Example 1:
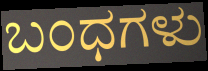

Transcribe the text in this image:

ಬಂಧಗಳು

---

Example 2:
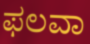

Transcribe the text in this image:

ಫಲವಾ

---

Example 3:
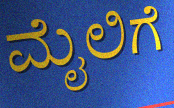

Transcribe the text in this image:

ಮೈಲಿಗೆ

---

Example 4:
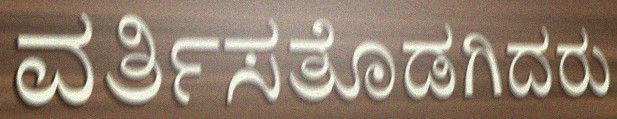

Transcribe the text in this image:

ವರ್ತಿಸತೊಡಗಿದರು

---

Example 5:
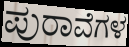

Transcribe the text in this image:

ಪುರಾವೆಗಳ